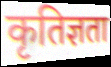
कृतिज्ञता